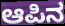
ಆಪಿನ